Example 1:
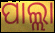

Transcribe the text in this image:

ପାଲ୍ଲା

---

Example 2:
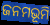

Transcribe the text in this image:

ଜନମଭୂମି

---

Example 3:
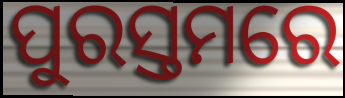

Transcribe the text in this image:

ପୁରସ୍ତମରେ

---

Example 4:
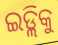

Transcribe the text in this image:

ଇଡ୍ଲିକୁ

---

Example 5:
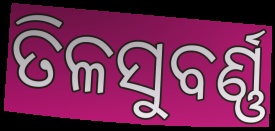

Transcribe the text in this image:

ତିଳସୁବର୍ଣ୍ଣ